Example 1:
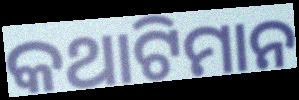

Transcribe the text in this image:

କଥାଟିମାନ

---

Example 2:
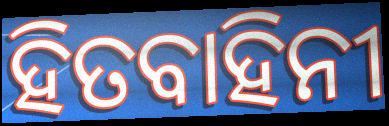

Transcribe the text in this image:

ହିତବାହିନୀ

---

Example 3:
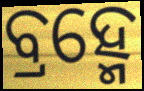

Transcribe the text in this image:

ବ୍ରହ୍ମେ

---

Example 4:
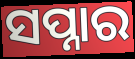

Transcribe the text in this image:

ସପ୍ନାର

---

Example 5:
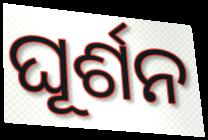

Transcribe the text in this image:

ଘୂର୍ଶନ